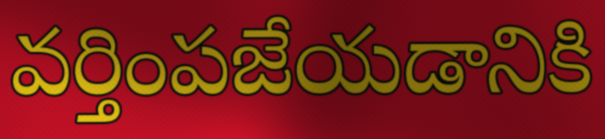
వర్తింపజేయడానికి